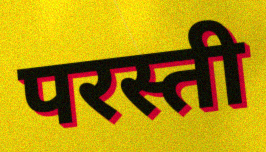
परस्ती